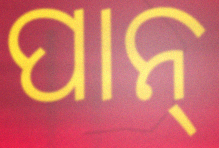
ପାନ୍